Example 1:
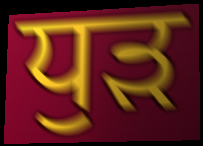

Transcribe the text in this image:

ਧੁੜ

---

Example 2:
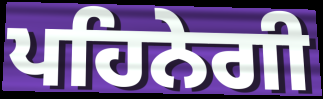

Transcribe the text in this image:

ਪਹਿਨੇਗੀ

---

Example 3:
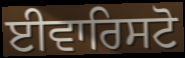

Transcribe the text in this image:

ਈਵਾਰਿਸਟੋ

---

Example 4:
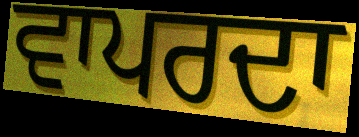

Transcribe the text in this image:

ਵਾਪਰਦਾ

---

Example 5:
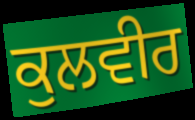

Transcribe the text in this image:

ਕੁਲਵੀਰ